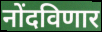
नोंदविणार